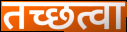
तच्छत्वा